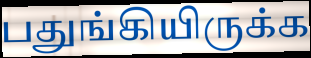
பதுங்கியிருக்க